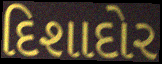
દિશાદોર